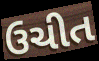
ઉચીત